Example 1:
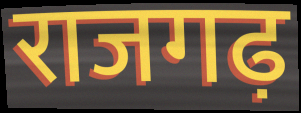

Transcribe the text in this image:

राजगढ़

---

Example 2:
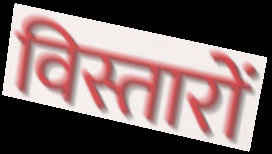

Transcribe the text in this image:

विस्तारों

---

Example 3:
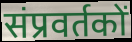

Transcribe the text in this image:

संप्रवर्तकों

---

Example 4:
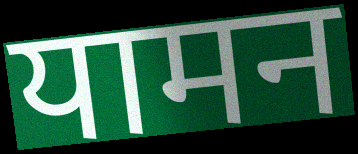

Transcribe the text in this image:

यामन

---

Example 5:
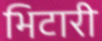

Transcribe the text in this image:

भिटारी